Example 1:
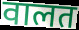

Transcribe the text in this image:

वालत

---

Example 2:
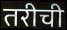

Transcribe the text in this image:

तरीची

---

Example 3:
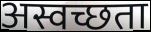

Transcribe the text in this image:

अस्वच्छता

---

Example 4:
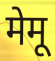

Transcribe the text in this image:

मेमू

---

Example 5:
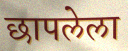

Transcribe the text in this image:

छापलेला